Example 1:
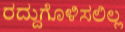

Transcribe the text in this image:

ರದ್ದುಗೊಳಿಸಲಿಲ್ಲ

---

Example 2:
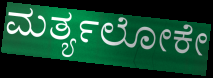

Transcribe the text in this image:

ಮರ್ತ್ಯಲೋಕೇ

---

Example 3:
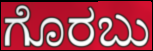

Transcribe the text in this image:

ಗೊರಬು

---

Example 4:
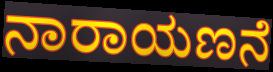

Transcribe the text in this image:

ನಾರಾಯಣನೆ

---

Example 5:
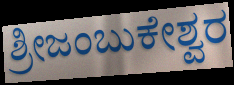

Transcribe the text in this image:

ಶ್ರೀಜಂಬುಕೇಶ್ವರ